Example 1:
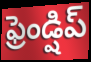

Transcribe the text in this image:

ఫ్రెండ్షిప్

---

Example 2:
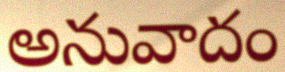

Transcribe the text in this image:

అనువాదం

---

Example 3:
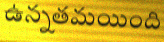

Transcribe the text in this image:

ఉన్నతమయింది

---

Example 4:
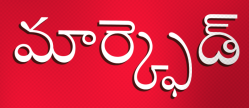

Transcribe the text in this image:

మార్క్ఫెడ్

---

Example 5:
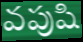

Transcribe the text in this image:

వపుషి